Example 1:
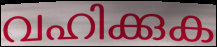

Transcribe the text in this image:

വഹിക്കുക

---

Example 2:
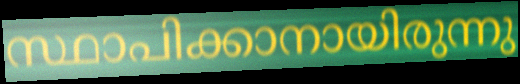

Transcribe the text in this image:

സ്ഥാപിക്കാനായിരുന്നു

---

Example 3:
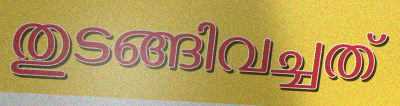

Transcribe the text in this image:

തുടങ്ങിവച്ചത്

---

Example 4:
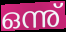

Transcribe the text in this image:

ഒന്നു്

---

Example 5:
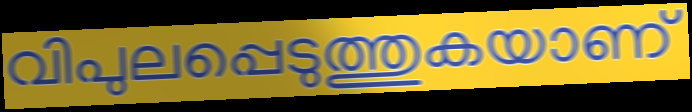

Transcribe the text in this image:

വിപുലപ്പെടുത്തുകയാണ്